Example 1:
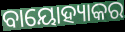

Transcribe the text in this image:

ବାୟୋହ୍ୟାକର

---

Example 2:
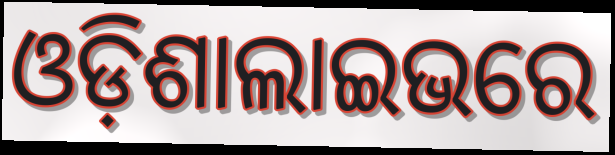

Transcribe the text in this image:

ଓଡ଼ିଶାଲାଇଭରେ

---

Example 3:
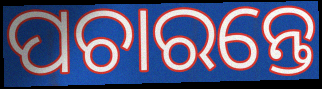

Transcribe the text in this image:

ପଚାରନ୍ତେ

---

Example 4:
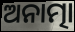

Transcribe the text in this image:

ଅନାତ୍ମା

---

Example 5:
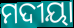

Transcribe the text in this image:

ମଦୀୟା